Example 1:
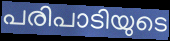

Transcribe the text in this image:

പരിപാടിയുടെ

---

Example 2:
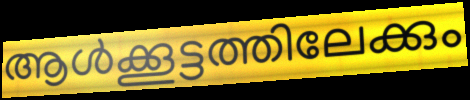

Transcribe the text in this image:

ആൾക്കൂട്ടത്തിലേക്കും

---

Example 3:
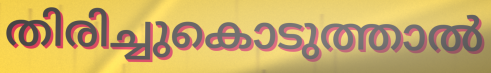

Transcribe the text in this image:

തിരിച്ചുകൊടുത്താൽ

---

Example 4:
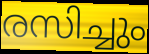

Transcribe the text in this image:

രസിച്ചും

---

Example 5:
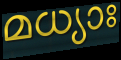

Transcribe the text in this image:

മധ്യാഃ